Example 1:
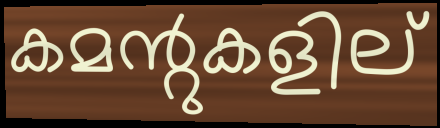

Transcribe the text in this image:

കമന്റുകളില്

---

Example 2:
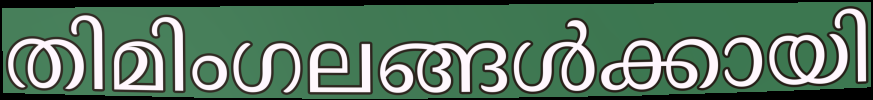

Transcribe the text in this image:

തിമിംഗലങ്ങൾക്കായി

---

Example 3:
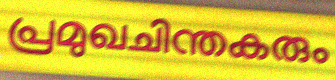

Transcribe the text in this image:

പ്രമുഖചിന്തകരും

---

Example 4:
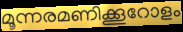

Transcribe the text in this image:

മൂന്നരമണിക്കൂറോളം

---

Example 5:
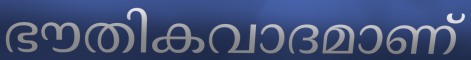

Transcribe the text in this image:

ഭൗതികവാദമാണ്